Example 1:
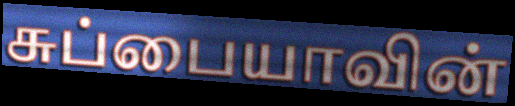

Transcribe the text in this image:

சுப்பையாவின்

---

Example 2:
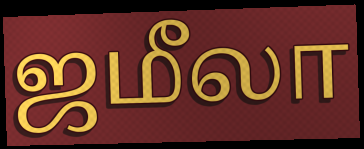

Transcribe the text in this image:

ஜமீலா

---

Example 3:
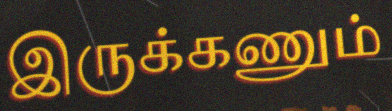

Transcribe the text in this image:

இருக்கணும்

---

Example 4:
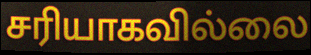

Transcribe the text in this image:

சரியாகவில்லை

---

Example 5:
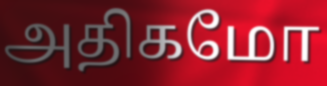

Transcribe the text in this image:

அதிகமோ